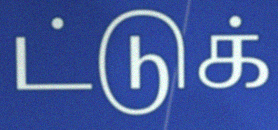
ட்டுக்